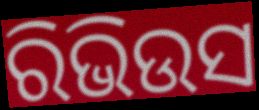
ରିଭିଉସ